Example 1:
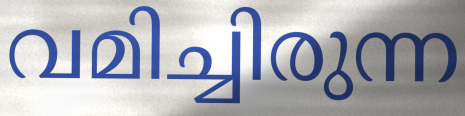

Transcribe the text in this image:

വമിച്ചിരുന്ന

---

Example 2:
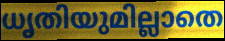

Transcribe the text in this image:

ധൃതിയുമില്ലാതെ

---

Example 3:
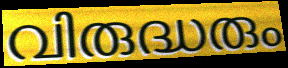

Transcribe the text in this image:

വിരുദ്ധരും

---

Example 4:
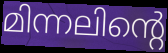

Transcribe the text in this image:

മിന്നലിന്റെ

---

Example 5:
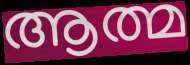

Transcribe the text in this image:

ആത്മ